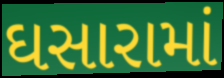
ઘસારામાં